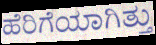
ಹೆರಿಗೆಯಾಗಿತ್ತು